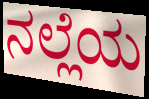
ನಲ್ಲೆಯ